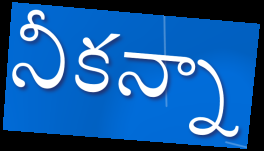
నీకన్నా